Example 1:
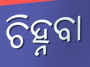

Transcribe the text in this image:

ଚିହ୍ନବା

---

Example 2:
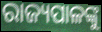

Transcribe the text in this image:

ରାଜ୍ୟପାଳଙ୍କୁ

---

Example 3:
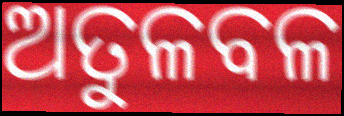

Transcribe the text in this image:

ଅତୁଳବଳ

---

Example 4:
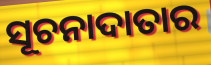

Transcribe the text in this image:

ସୂଚନାଦାତାର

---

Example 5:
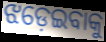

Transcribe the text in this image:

ଝଡ଼େଇବାକୁ